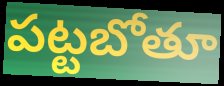
పట్టబోతూ